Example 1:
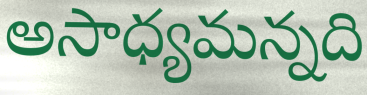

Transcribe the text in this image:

అసాధ్యమన్నది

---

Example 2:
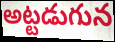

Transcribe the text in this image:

అట్టడుగున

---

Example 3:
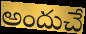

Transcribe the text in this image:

అందుచే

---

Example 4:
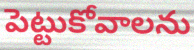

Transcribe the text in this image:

పెట్టుకోవాలను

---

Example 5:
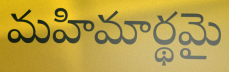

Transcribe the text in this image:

మహిమార్థమై